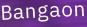
Bangaon